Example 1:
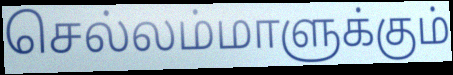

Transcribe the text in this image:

செல்லம்மாளுக்கும்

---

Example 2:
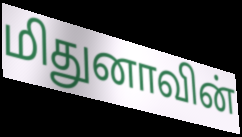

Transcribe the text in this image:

மிதுனாவின்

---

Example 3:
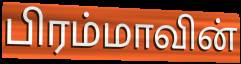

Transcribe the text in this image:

பிரம்மாவின்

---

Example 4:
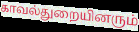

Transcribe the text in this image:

காவல்துறையினரும்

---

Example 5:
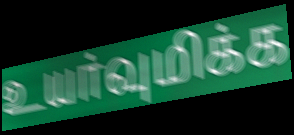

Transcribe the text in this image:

உயர்வுமிக்க